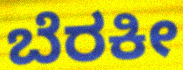
ಬೆರಕೀ